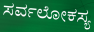
ಸರ್ವಲೋಕಸ್ಯ